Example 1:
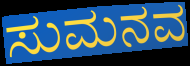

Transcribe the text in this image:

ಸುಮನವ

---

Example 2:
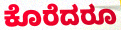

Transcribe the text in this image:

ಕೊರೆದರೂ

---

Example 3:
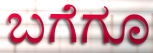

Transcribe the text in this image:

ಬಗೆಗೂ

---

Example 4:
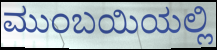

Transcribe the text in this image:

ಮುಂಬಯಿಯಲ್ಲಿ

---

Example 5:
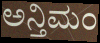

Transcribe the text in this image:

ಅನ್ತಿಮಂ